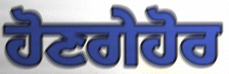
ਹੋਣਗੇਹੋਰ